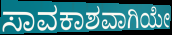
ಸಾವಕಾಶವಾಗಿಯೇ